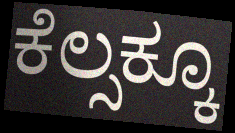
ಕೆಲ್ಸಕ್ಕೂ